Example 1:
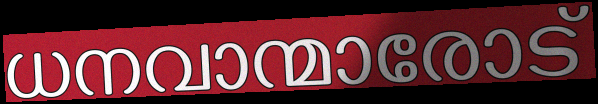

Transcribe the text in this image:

ധനവാന്മാരോട്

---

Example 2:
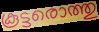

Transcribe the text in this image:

കൂട്ടരൊത്തു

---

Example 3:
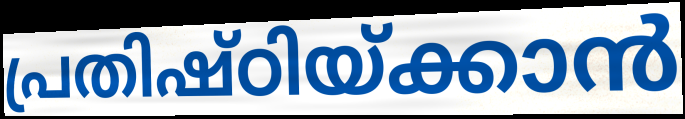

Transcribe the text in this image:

പ്രതിഷ്ഠിയ്ക്കാൻ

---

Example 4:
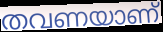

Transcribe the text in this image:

തവണയാണ്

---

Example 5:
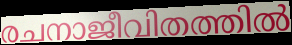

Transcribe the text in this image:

രചനാജീവിതത്തിൽ